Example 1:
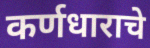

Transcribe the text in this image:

कर्णधाराचे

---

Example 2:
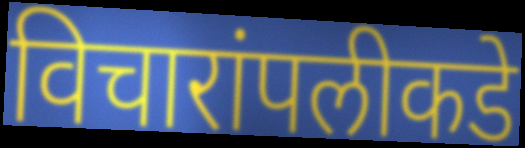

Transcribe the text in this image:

विचारांपलीकडे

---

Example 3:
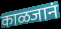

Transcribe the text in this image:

काळजानं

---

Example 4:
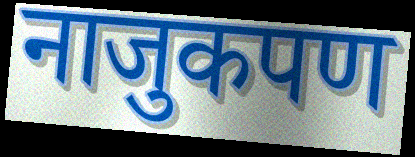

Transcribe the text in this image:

नाजुकपण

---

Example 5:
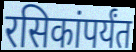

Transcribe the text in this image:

रसिकांपर्यंत